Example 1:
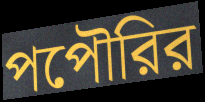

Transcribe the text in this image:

পপৌরির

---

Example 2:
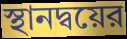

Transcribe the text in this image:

স্থানদ্বয়ের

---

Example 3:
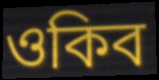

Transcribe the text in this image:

ওকিব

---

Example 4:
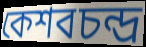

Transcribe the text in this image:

কেশবচন্দ্র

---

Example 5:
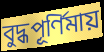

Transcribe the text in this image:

বুদ্ধপূর্ণিমায়